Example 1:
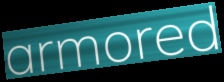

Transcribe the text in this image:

armored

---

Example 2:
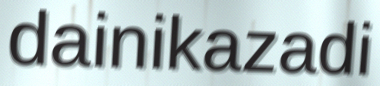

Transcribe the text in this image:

dainikazadi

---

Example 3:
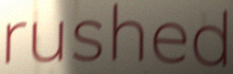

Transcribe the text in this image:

rushed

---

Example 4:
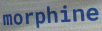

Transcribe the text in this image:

morphine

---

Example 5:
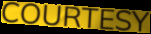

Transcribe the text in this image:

COURTESY